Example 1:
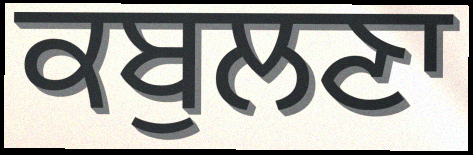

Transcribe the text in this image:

ਕਬੁਲਣਾ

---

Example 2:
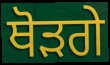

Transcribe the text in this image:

ਥੋੜਗੇ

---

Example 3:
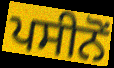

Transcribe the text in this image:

ਪਸੀਨੋਂ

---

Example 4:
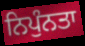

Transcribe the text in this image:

ਨਿਪੁੰਨਤਾ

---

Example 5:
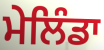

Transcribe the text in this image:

ਮੇਲਿੰਡਾ